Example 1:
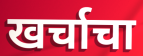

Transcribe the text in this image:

खर्चाचा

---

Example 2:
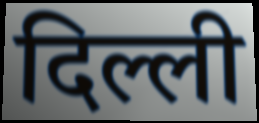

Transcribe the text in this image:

दिल्ली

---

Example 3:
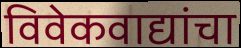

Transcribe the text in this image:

विवेकवाद्यांचा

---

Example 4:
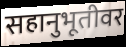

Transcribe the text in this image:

सहानुभूतीवर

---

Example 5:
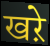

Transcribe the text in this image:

खऱे